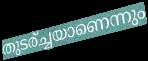
തുടര്ച്ചയാണെന്നും